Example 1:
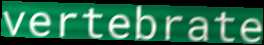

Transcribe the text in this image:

vertebrate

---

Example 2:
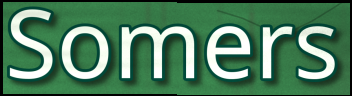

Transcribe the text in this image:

Somers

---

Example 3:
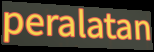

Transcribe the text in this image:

peralatan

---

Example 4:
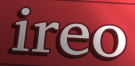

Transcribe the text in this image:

ireo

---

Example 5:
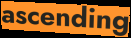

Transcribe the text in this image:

ascending